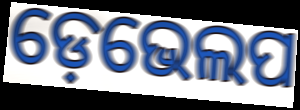
ଡ଼େଭେଲପ